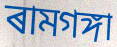
ৰামগঙ্গা